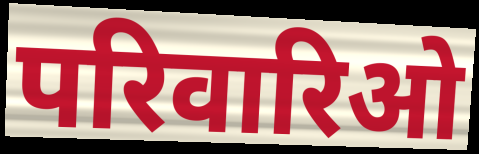
परिवारिओ